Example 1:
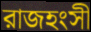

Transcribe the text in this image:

রাজহংসী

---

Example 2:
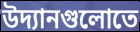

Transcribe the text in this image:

উদ্যানগুলোতে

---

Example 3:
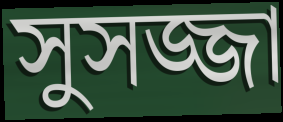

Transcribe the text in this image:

সুসজ্জা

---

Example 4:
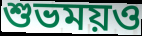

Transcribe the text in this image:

শুভময়ও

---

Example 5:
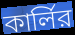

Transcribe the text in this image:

কার্লির